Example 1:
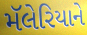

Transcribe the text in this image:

મૅલેરિયાને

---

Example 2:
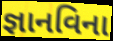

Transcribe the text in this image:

જ્ઞાનવિના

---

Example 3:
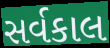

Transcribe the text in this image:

સર્વકાલ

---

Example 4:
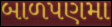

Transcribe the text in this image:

બાળપણમા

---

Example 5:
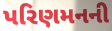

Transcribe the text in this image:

પરિણમનની